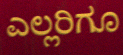
ಎಲ್ಲರಿಗೂ